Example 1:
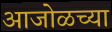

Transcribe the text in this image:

आजोळच्या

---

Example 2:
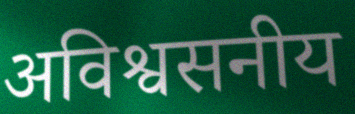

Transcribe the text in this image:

अविश्वसनीय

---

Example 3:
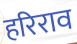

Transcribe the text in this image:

हरिराव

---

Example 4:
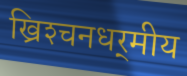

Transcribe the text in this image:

ख्रिश्चनधर्मीय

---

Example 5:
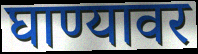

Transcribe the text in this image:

घाण्यावर